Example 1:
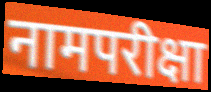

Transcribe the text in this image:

नामपरीक्षा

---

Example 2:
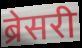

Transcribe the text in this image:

ब्रेसरी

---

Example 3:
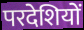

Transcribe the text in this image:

परदेशियों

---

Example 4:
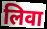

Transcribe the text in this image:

लिवा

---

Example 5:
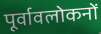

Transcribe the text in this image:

पूर्वावलोकनों